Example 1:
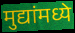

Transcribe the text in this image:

मुद्यांमध्ये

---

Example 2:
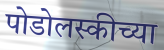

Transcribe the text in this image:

पोडोलस्कीच्या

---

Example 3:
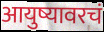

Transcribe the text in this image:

आयुष्यावरचं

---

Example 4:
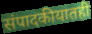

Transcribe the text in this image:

संपादकीयातही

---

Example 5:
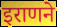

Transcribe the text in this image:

इराणने